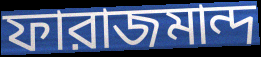
ফারাজমান্দ